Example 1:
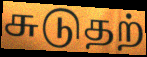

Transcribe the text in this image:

சுடுதற்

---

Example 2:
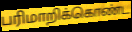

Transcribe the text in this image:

பரிமாறிக்கொண்ட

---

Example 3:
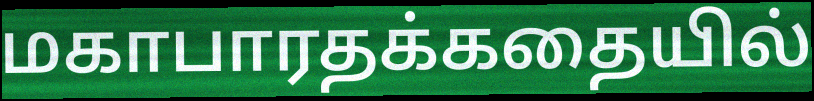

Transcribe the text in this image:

மகாபாரதக்கதையில்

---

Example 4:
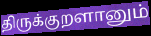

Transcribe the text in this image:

திருக்குறளானும்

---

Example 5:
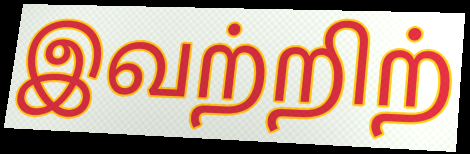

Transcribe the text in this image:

இவற்றிற்